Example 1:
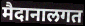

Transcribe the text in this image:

मैदानालगत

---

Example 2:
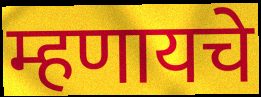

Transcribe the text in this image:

म्हणायचे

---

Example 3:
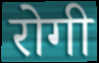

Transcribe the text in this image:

रोगी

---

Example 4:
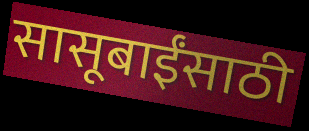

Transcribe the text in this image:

सासूबाईंसाठी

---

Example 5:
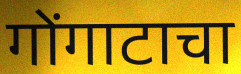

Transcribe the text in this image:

गोंगाटाचा